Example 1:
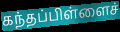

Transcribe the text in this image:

கந்தப்பிள்ளைச்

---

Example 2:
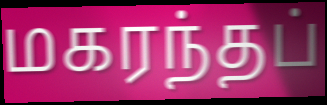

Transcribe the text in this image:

மகரந்தப்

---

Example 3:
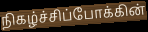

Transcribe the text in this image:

நிகழ்ச்சிப்போக்கின்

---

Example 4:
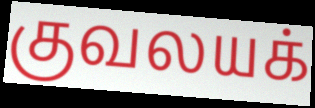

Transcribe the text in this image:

குவலயக்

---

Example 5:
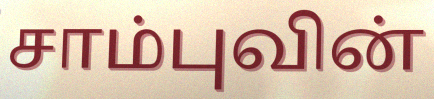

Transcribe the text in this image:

சாம்புவின்